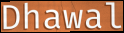
Dhawal